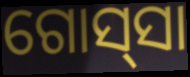
ଗୋସ୍‌ସା